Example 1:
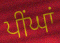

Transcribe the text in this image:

ਪੀਂਘਾਂ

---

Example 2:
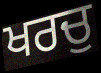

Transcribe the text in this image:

ਖਰਚੁ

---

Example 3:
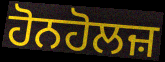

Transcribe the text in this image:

ਹੋਨਹੋਲਜ਼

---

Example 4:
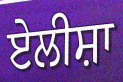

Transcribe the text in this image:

ਏਲੀਸ਼ਾ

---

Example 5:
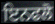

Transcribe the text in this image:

ਇਨਫਲੋ